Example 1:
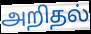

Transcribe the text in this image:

அறிதல்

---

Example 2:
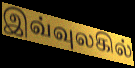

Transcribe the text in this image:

இவ்வுலகில்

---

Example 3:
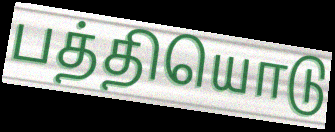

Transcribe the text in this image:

பத்தியொடு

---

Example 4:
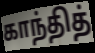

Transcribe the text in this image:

காந்தித்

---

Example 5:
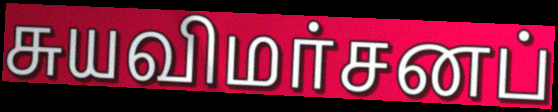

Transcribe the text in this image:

சுயவிமர்சனப்